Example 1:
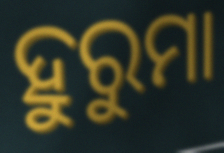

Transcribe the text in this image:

ହୁରୁମା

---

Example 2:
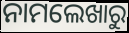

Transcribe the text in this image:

ନାମଲେଖାରୁ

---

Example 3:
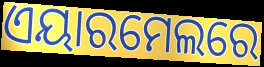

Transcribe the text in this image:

ଏୟାରମେଲରେ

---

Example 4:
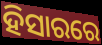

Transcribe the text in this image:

ହିସାରରେ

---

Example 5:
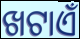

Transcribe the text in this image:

ଖଟାଏଁ